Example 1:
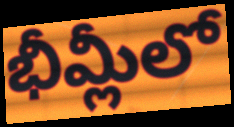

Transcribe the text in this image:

భీమ్లీలో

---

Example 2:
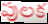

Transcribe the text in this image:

పులక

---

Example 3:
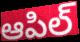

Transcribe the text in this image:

ఆపిల్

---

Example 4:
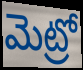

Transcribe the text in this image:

మెట్రో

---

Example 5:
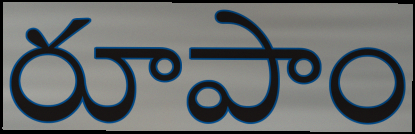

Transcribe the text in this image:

రూపాం